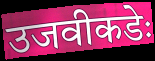
उजवीकडेः